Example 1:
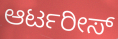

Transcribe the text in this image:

ಆರ್ಟರೀಸ್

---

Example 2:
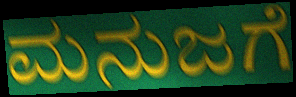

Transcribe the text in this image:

ಮನುಜಗೆ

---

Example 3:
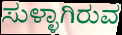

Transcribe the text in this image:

ಸುಳ್ಳಾಗಿರುವ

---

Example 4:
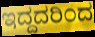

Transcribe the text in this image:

ಇದ್ದದರಿಂದ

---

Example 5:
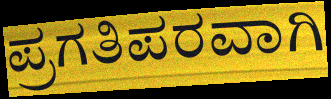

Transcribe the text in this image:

ಪ್ರಗತಿಪರವಾಗಿ